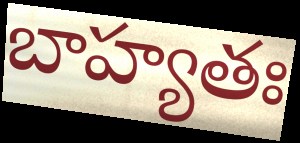
బాహ్యతః